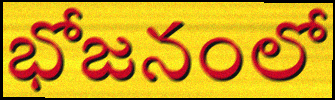
భోజనంలో